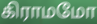
கிராமமோ